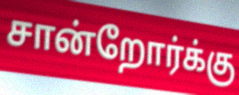
சான்றோர்க்கு